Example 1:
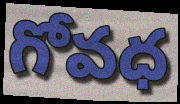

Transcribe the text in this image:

గోవధ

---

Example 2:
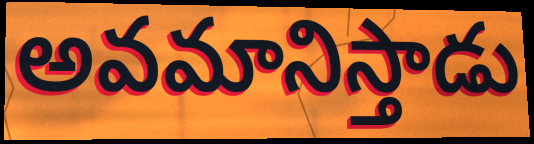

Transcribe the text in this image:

అవమానిస్తాడు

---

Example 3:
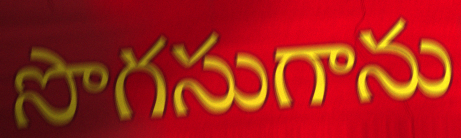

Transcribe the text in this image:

సొగసుగాను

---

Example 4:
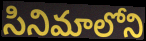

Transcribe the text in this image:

సినిమాలోని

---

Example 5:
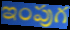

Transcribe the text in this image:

ఇంపుగ